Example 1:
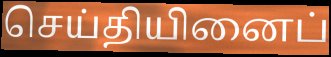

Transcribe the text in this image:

செய்தியினைப்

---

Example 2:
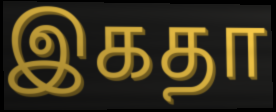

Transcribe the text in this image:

இகதா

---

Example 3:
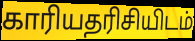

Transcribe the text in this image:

காரியதரிசியிடம்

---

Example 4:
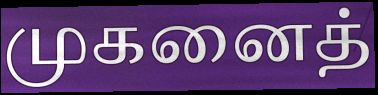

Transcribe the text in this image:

முகனைத்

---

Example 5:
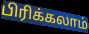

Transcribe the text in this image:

பிரிக்கலாம்